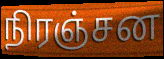
நிரஞ்சன